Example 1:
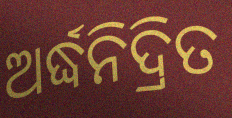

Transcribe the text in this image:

ଅର୍ଦ୍ଧନିଦ୍ରିତ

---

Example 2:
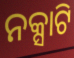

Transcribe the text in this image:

ନକ୍ସାଟି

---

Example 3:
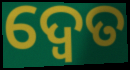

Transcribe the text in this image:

ଦ୍ବେତ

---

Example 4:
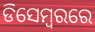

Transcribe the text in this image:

ଡିସେମ୍ବରରେ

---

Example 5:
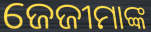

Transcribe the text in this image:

ଜେଜୀମାଙ୍କ